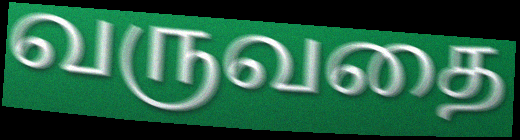
வருவதை